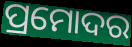
ପ୍ରମୋଦର